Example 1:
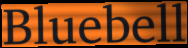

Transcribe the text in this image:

Bluebell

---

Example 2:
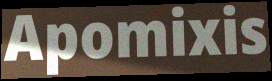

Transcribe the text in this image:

Apomixis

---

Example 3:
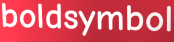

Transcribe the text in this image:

boldsymbol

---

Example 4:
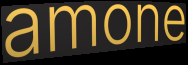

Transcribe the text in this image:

amone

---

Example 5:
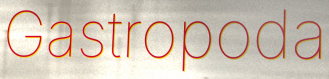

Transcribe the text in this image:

Gastropoda